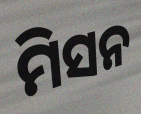
ମିସନ